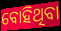
ବୋହିଥିବା